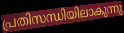
പ്രതിസന്ധിയിലാകുന്നു